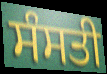
ਸੰਸਤੀ